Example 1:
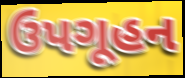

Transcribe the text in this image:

ઉપગૂહન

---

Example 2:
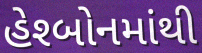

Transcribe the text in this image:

હેશ્બોનમાંથી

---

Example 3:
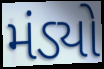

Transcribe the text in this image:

મંડ્યો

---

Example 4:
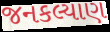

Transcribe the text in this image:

જનકલ્યાણ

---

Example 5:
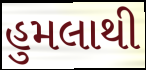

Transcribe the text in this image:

હુમલાથી